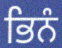
ਭਿਨੰ